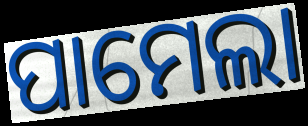
ପାମେଲା